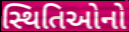
સ્થિતિઓનો